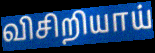
விசிறியாய்